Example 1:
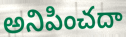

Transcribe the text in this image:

అనిపించదా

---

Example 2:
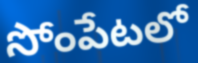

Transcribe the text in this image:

సోంపేటలో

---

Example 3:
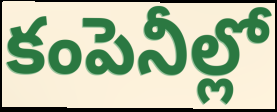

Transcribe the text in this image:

కంపెనీల్లో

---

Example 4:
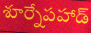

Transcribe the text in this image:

శూర్నేపహాడ్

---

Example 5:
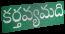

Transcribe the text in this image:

కర్తవ్యమది